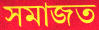
সমাজত